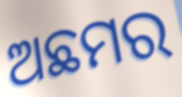
ଅଛମର